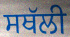
ਸਥੱਲੀ